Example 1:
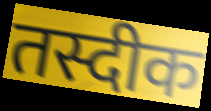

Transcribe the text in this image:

तस्‍दीक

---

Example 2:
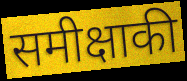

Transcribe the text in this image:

समीक्षाकी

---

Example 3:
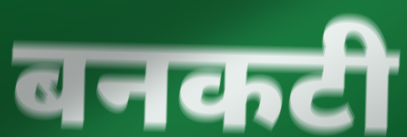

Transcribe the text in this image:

बनकटी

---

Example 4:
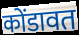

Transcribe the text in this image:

कोंडावत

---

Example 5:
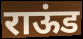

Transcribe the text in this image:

राऊंड